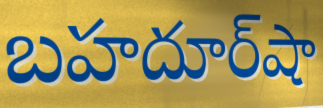
బహదూర్‌షా